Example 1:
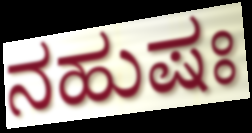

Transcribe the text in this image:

ನಹುಷಃ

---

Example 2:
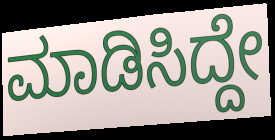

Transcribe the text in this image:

ಮಾಡಿಸಿದ್ದೇ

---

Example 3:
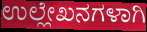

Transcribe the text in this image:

ಉಲ್ಲೇಖನಗಳಾಗಿ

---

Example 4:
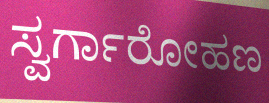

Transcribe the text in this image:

ಸ್ವರ್ಗಾರೋಹಣ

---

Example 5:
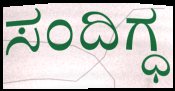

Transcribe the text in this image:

ಸಂದಿಗ್ಧ